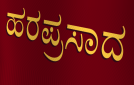
ಹರಪ್ರಸಾದ